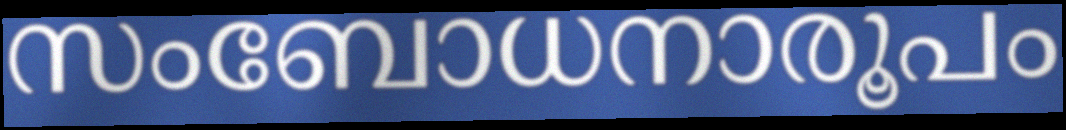
സംബോധനാരൂപം